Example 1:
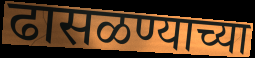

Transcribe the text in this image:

ढासळण्याच्या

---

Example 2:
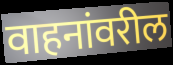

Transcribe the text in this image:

वाहनांवरील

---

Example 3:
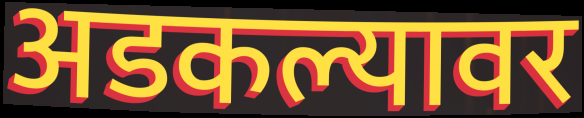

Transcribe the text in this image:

अडकल्यावर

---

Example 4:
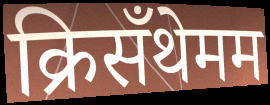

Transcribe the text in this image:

क्रिसँथेमम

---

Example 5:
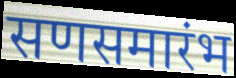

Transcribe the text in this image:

सणसमारंभ